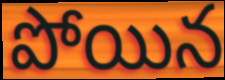
పోయిన